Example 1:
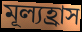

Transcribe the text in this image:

মূল্যহ্রাস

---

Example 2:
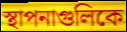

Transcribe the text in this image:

স্থাপনাগুলিকে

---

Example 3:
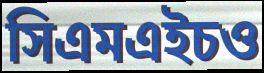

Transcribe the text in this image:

সিএমএইচও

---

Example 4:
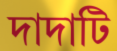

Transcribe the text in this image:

দাদাটি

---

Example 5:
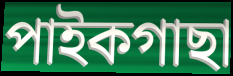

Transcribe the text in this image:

পাইকগাছা